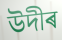
উদীৰ